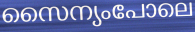
സൈന്യംപോലെ